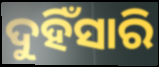
ଦୁହିଁସାରି